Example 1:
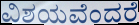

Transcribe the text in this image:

ವಿಶಯವೆಂದರೆ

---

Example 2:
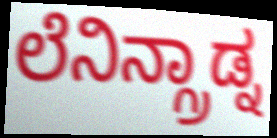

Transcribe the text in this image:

ಲೆನಿನ್ಗ್ರಾಡ್ನ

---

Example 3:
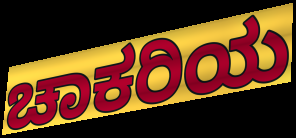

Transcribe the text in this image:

ಚಾಕರಿಯ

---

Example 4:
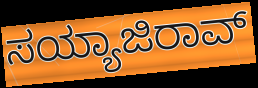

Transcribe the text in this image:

ಸಯ್ಯಾಜಿರಾವ್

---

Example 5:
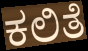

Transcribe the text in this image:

ಕಲಿತೆ